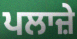
ਪਲਾਜ਼ੇ